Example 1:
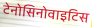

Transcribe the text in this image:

टेनोसिनोवाइटिस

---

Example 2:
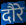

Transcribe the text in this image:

दौरे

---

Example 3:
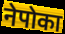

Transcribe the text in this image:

नेपोका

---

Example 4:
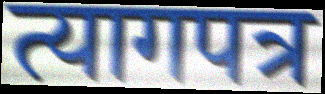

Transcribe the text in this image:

त्यागपत्र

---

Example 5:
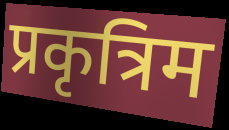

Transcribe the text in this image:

प्रकृत्रिम